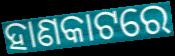
ହାଣକାଟରେ